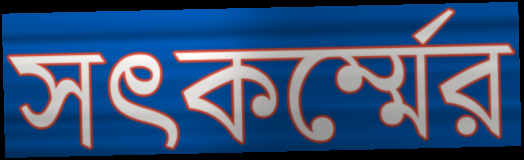
সৎকর্ম্মের